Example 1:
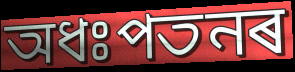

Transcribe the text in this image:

অধঃপতনৰ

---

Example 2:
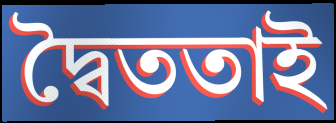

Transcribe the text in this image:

দ্বৈততাই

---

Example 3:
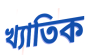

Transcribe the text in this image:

খ্যাতিক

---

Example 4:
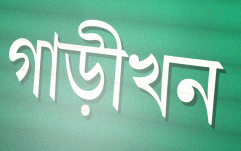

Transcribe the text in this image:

গাড়ীখন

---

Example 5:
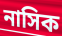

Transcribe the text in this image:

নাসিক